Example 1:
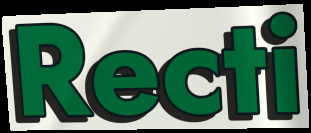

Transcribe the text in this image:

Recti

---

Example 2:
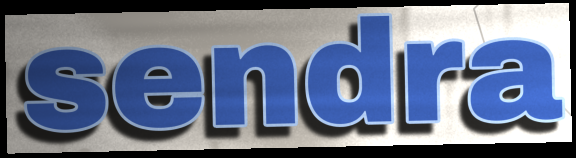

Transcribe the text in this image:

sendra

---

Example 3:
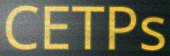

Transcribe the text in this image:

CETPs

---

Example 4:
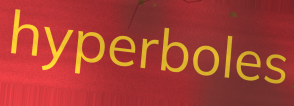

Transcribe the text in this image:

hyperboles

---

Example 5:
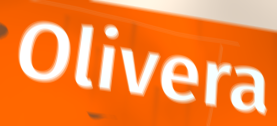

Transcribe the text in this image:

Olivera